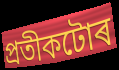
প্ৰতীকটোৰ